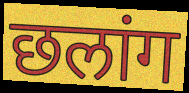
छलांग